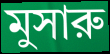
মুসারু